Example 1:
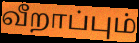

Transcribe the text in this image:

வீறாப்பும்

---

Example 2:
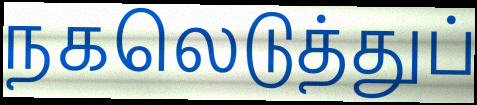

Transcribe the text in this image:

நகலெடுத்துப்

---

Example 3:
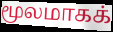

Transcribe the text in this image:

மூலமாகக்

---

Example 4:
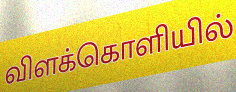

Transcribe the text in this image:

விளக்கொளியில்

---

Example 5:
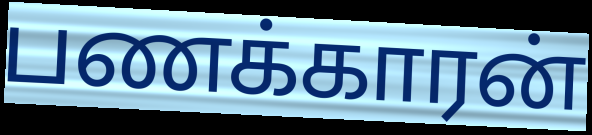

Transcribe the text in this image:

பணக்காரன்